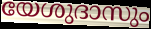
യേശുദാസും